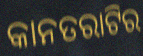
କାନତରାଟିର